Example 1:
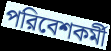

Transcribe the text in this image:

পরিবেশকর্মী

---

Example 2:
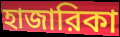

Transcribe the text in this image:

হাজারিকা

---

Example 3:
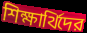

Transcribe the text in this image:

শিক্ষার্থিদের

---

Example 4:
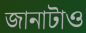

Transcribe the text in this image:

জানাটাও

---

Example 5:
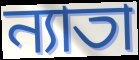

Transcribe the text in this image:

ন্যাতা